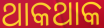
ଥାକଥାକ